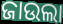
ଜାଉଲା